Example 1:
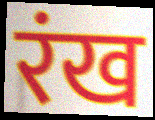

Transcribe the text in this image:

रंख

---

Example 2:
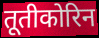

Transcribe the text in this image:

तूतीकोरिन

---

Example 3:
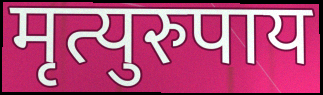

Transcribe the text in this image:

मृत्युरुपाय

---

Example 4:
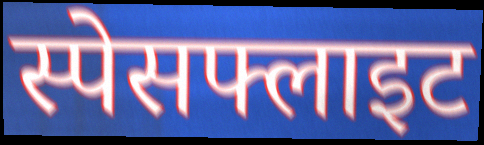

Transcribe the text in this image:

स्पेसफ्लाइट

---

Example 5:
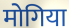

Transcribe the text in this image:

मोगिया